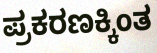
ಪ್ರಕರಣಕ್ಕಿಂತ